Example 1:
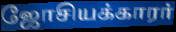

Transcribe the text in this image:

ஜோசியக்காரர்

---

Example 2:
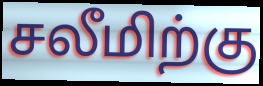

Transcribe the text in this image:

சலீமிற்கு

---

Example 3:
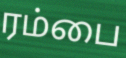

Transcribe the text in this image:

ரம்பை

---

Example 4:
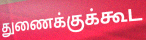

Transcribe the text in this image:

துணைக்குக்கூட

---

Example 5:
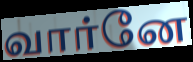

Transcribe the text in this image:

வார்னே